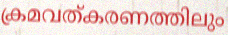
ക്രമവത്കരണത്തിലും